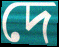
দে